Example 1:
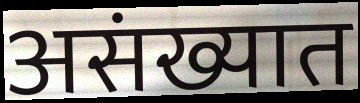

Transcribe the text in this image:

असंख्यात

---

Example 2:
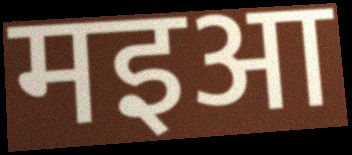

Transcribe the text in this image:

मइआ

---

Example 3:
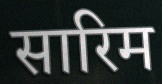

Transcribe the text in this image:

सारिम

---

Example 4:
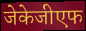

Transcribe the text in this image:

जेकेजीएफ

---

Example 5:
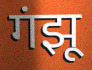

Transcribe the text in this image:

गंझू